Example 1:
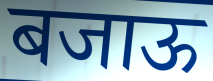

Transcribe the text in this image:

बजाऊ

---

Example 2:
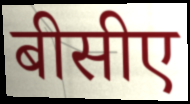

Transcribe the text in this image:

बीसीए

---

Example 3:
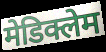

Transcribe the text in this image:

मेडिक्लेम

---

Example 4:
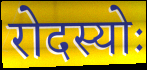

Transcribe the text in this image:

रोदस्योः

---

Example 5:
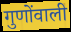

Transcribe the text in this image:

गुणोंवाली